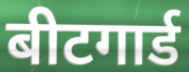
बीटगार्ड